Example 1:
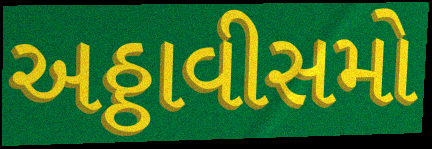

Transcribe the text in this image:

અઠ્ઠાવીસમો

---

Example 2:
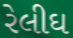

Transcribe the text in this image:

રેલીઘ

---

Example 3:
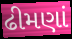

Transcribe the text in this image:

ઢીમણાં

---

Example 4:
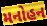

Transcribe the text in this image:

મનોહન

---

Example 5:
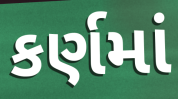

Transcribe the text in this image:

કર્ણમાં